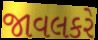
જાવલકરે